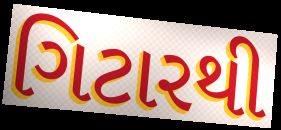
ગિટારથી